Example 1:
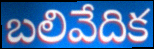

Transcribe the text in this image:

బలివేదిక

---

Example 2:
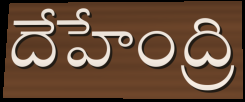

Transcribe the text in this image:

దేహేంద్రి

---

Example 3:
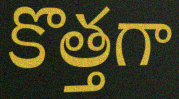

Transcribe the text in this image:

కొత్తగా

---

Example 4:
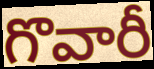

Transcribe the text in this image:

గొవారీ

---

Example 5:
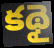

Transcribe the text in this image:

కథై